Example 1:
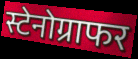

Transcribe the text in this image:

स्टेनोग्राफर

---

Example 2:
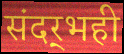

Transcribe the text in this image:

संदर्भही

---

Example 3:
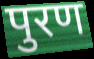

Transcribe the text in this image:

पुरण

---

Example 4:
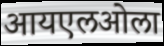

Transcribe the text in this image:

आयएलओला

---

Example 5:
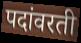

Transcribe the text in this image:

पदांवरती